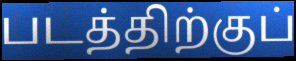
படத்திற்குப்